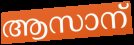
ആസാന്